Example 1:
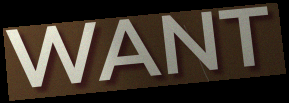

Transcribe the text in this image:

WANT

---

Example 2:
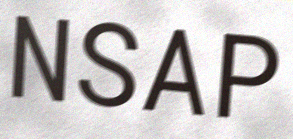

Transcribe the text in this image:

NSAP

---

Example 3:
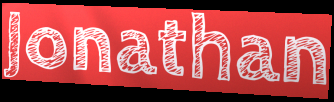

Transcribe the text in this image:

Jonathan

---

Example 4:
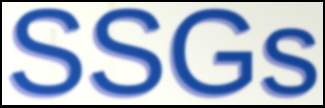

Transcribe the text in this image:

SSGs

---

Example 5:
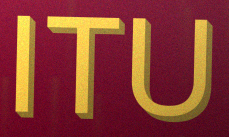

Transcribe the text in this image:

ITU